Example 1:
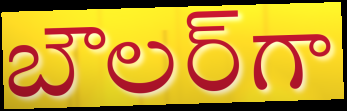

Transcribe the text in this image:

బౌలర్‌గా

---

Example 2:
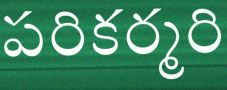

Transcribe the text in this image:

పరికర్మరి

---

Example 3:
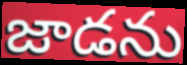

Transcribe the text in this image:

జాడను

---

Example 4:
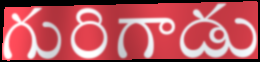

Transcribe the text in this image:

గురిగాడు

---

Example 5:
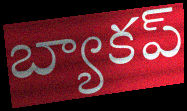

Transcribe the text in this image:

బ్యాకప్